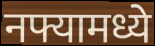
नफ्यामध्ये